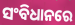
ସଂବିଧାନରେ